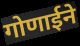
गोणाईने